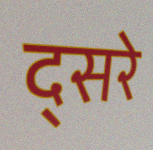
द्सरे